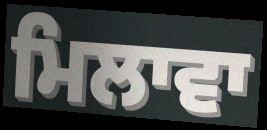
ਮਿਲਾਵਾ